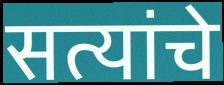
सत्यांचे